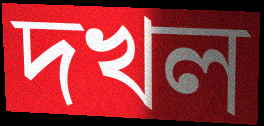
দখল